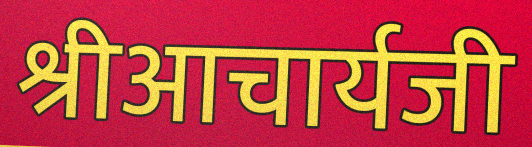
श्रीआचार्यजी